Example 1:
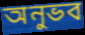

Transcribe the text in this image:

অনুভব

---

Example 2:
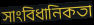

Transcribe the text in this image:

সাংবিধানিকতা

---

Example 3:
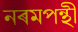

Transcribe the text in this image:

নৰমপন্থী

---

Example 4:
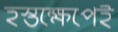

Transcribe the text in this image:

হস্তক্ষেপেই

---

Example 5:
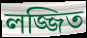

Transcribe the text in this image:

লজ্জিত